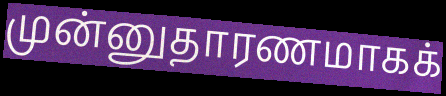
முன்னுதாரணமாகக்